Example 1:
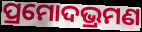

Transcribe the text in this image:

ପ୍ରମୋଦଭ୍ରମଣ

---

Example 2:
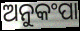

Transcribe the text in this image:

ଅନୁକଂପା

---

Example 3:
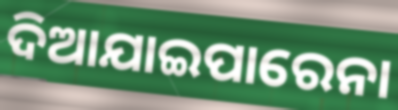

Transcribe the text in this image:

ଦିଆଯାଇପାରେନା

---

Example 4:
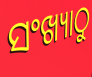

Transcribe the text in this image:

ସଂଖ୍ୟାଠୁ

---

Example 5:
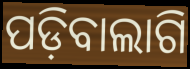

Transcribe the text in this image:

ପଡ଼ିବାଲାଗି